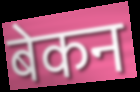
बेकन